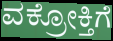
ವಕ್ರೋಕ್ತಿಗೆ